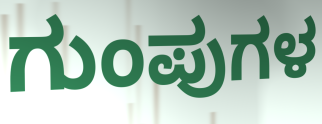
ಗುಂಪುಗಳ